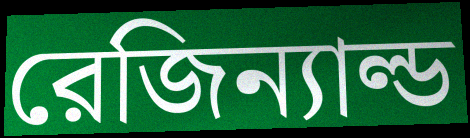
রেজিন্যাল্ড